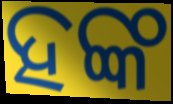
ହଙ୍କ